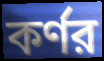
কর্ণর